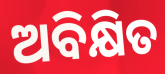
ଅବିକ୍ଷିତ